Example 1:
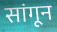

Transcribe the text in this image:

सांगून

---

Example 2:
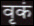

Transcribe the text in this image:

वृकं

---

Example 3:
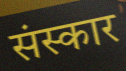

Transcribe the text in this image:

संस्कार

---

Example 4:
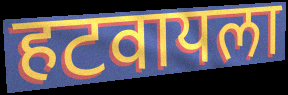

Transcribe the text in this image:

हटवायला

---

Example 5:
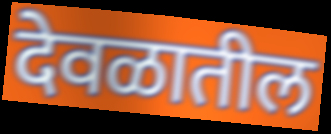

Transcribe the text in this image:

देवळातील